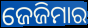
ଜେଜିମାର